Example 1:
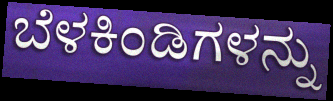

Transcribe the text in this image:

ಬೆಳಕಿಂಡಿಗಳನ್ನು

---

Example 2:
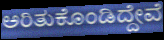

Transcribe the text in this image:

ಅರಿತುಕೊಂಡಿದ್ದೇವೆ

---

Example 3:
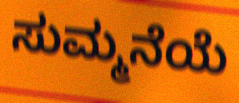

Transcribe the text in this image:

ಸುಮ್ಮನೆಯೆ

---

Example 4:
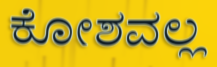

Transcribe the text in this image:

ಕೋಶವಲ್ಲ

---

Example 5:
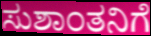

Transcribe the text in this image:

ಸುಶಾಂತನಿಗೆ